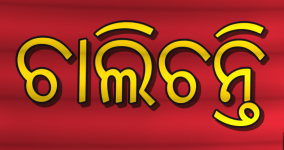
ଚାଲିଚନ୍ତି